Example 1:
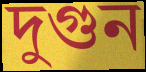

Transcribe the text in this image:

দুগুন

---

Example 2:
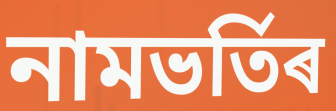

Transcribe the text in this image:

নামভৰ্তিৰ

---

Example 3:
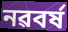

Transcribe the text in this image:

নৱবৰ্ষ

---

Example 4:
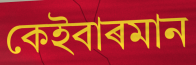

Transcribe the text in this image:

কেইবাৰমান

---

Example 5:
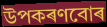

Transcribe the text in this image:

উপকৰণবোৰ